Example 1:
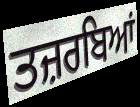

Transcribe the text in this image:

ਤਜ਼ਰਬਿਆਂ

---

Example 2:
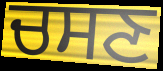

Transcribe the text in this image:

ਚਸਣ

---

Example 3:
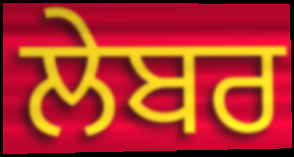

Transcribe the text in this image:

ਲੇਬਰ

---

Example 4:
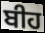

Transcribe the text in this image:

ਬੀਹ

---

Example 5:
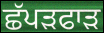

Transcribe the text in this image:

ਛੱਪੜਫਾੜ